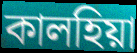
কালহিয়া